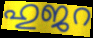
ഹുജറ